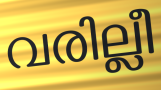
വരില്ലീ